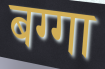
बग्गा